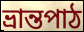
ভ্ৰান্তপাঠ